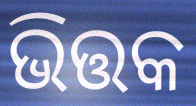
ଭିତ୍ତକ